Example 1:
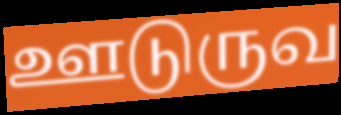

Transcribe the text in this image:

ஊடுருவ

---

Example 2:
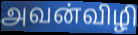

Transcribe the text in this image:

அவன்விழி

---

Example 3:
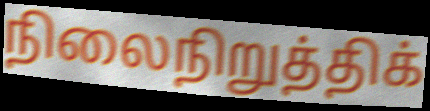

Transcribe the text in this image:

நிலைநிறுத்திக்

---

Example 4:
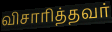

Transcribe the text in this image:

விசாரித்தவர்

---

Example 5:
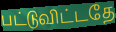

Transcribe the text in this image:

பட்டுவிட்டதே